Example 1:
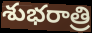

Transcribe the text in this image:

శుభరాత్రి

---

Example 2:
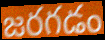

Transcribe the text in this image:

జరగడం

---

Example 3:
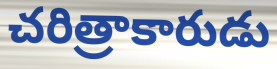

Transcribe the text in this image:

చరిత్రాకారుడు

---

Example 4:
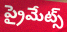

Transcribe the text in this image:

ప్రైమేట్స్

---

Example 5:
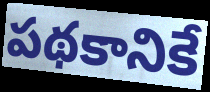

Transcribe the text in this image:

పథకానికే